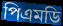
পিএমডি